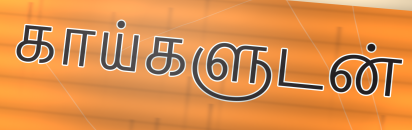
காய்களுடன்